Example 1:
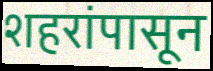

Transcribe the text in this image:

शहरांपासून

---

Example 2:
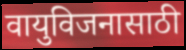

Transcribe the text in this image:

वायुविजनासाठी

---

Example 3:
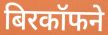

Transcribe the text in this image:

बिरकॉफने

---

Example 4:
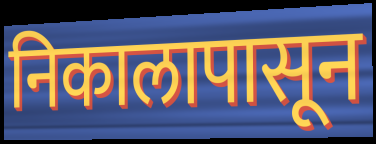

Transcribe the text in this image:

निकालापासून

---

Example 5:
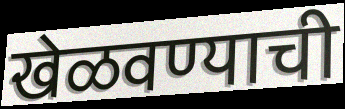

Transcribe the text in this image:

खेळवण्याची